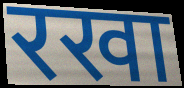
रखा